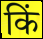
किं